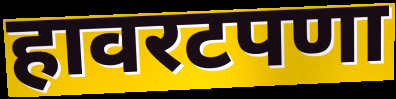
हावरटपणा